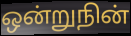
ஒன்றுநின்